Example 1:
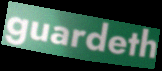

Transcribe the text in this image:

guardeth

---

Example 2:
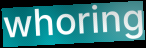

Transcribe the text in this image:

whoring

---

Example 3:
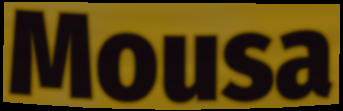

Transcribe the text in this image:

Mousa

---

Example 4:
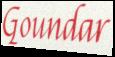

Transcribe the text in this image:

Goundar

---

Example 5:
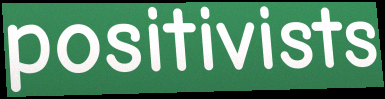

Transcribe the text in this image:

positivists